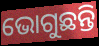
ଭୋଗୁଛନ୍ତି